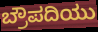
ಬ್ರೌಪದಿಯು